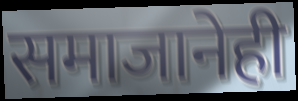
समाजानेही